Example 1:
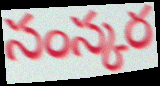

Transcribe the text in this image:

సంస్కర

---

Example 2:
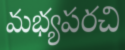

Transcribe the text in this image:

మభ్యపరచి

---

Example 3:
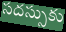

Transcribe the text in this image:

సదస్సుకు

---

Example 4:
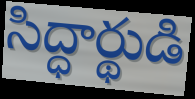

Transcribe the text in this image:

సిద్ధార్థుడి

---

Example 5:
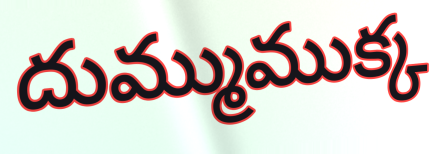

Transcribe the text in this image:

దుమ్ముముక్క